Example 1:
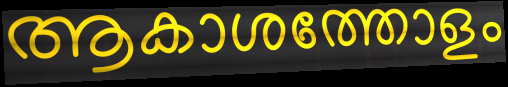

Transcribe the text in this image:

ആകാശത്തോളം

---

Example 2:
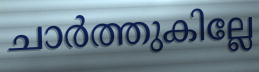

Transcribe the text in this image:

ചാർത്തുകില്ലേ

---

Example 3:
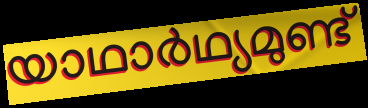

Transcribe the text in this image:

യാഥാർഥ്യമുണ്ട്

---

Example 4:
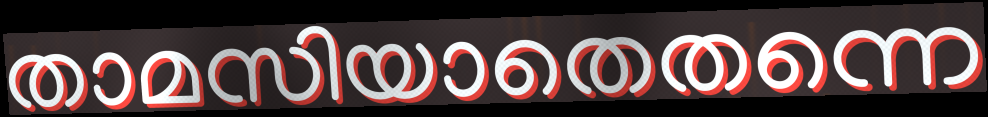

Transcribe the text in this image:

താമസിയാതെതന്നെ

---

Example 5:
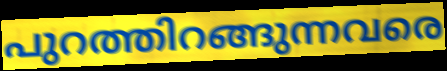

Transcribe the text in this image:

പുറത്തിറങ്ങുന്നവരെ